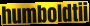
humboldtii